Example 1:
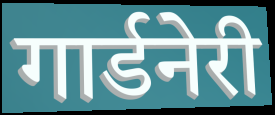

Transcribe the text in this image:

गार्डनेरी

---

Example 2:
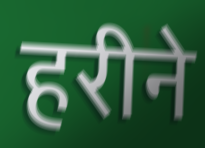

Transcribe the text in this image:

हरीने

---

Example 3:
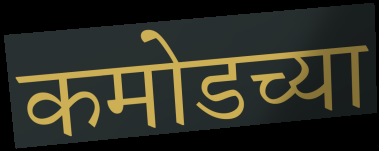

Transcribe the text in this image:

कमोडच्या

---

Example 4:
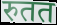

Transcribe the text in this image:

रुतत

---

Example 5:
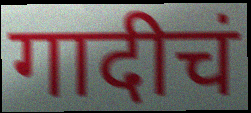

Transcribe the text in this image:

गादीचं